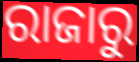
ରାଜାରୁ